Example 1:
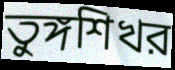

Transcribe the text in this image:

তুঙ্গশিখর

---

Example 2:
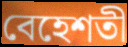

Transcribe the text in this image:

বেহেশতী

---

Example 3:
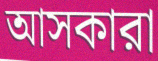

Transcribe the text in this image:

আসকারা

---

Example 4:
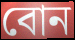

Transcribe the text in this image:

বোন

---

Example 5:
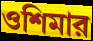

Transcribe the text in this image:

ওশিমার